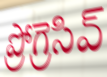
ప్రోగ్రెసివ్